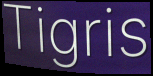
Tigris